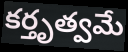
కర్తృత్వమే